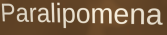
Paralipomena